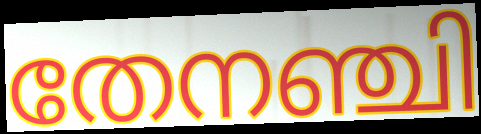
തേനഞ്ചി